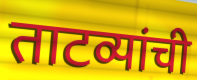
ताटव्यांची